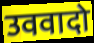
उववादो